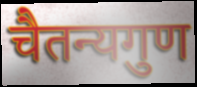
चैतन्यगुण